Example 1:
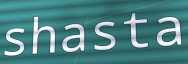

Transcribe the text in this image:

shasta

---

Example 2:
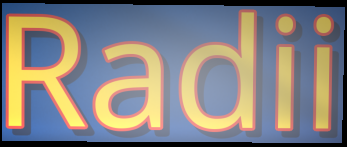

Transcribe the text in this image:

Radii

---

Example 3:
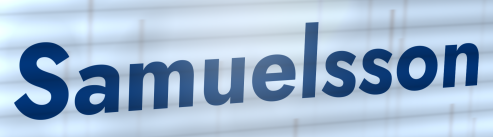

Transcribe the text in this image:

Samuelsson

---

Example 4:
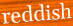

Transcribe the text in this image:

reddish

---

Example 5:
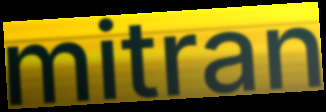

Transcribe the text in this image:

mitran